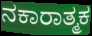
ನಕಾರಾತ್ಮಕ